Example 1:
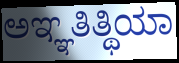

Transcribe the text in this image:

ಅಞ್ಞತಿತ್ಥಿಯಾ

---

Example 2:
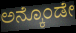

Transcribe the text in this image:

ಅನ್ಕೊಂಡೇ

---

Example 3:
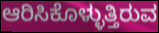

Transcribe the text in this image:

ಆರಿಸಿಕೊಳ್ಳುತ್ತಿರುವ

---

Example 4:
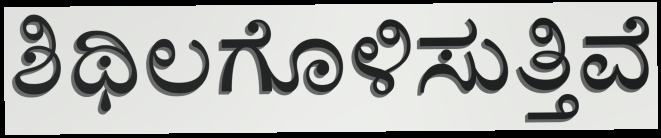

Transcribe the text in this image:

ಶಿಥಿಲಗೊಳಿಸುತ್ತಿವೆ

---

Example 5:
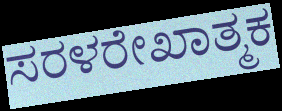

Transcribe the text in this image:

ಸರಳರೇಖಾತ್ಮಕ